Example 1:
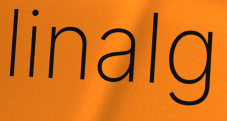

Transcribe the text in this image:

linalg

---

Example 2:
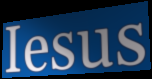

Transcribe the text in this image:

Iesus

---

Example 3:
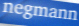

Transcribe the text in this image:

negmann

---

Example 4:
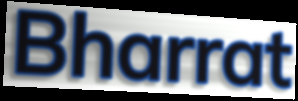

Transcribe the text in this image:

Bharrat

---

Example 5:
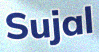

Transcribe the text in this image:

Sujal